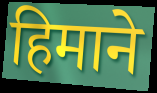
हिमाने